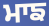
ਮਾਙ